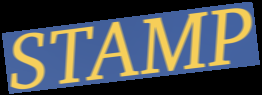
STAMP